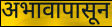
अभावापासून